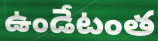
ఉండేటంత